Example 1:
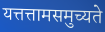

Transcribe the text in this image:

यत्तत्तामसमुच्यते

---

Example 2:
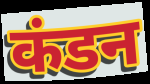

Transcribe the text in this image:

कंडन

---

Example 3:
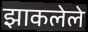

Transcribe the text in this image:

झाकलेले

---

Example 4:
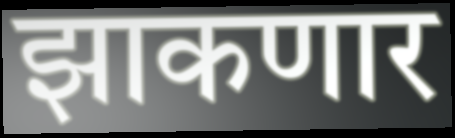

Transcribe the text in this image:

झाकणार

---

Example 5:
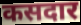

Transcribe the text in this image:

कसदार